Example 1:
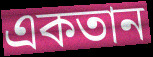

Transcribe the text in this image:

একতান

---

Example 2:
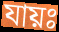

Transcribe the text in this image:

যায়ঃ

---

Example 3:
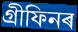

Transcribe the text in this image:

গ্ৰীফিনৰ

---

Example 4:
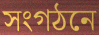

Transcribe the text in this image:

সংগঠনে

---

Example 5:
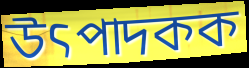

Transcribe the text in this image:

উৎপাদকক